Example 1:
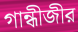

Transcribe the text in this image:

গান্ধীজীর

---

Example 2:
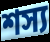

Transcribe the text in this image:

শস্য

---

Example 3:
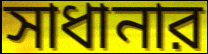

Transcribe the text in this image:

সাধানার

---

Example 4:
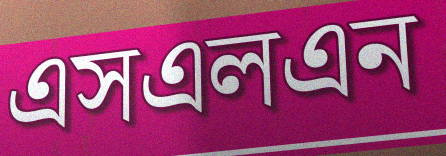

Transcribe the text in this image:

এসএলএন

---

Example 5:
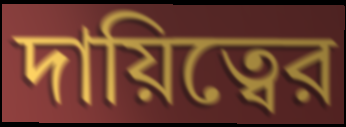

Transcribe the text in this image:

দায়িত্বের